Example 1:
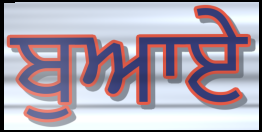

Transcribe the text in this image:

ਬੁਆਏ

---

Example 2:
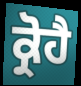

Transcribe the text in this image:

ਕ੍ਰੋਹੈ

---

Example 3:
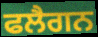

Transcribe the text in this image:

ਫਲੈਗਨ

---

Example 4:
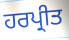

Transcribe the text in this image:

ਹਰਪ੍ਰੀਤ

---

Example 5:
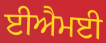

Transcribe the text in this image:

ਈਐਮਈ